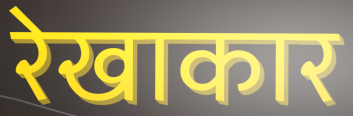
रेखाकार